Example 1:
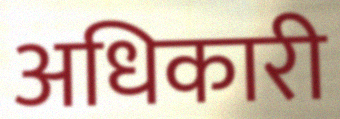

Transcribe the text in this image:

अधिकारी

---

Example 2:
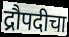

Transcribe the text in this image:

द्रौपदीचा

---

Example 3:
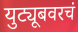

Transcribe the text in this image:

युट्यूबवरचं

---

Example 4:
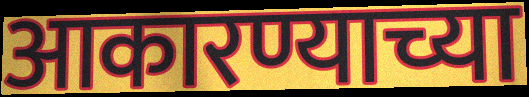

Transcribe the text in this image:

आकारण्याच्या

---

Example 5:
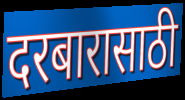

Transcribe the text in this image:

दरबारासाठी